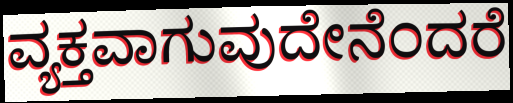
ವ್ಯಕ್ತವಾಗುವುದೇನೆಂದರೆ